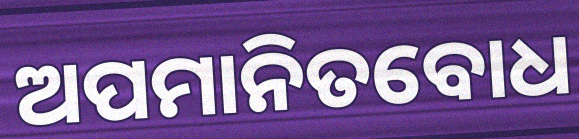
ଅପମାନିତବୋଧ